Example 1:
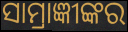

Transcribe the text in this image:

ସାମ୍ରାଜ୍ଞୀଙ୍କର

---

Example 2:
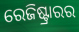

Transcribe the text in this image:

ରେଜିଷ୍ଟ୍ରାରର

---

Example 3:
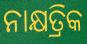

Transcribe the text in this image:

ନାକ୍ଷତ୍ରିକ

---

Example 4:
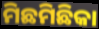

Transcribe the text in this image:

ମିଛମିଛିକା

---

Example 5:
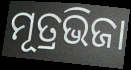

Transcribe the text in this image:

ମୂତ୍ରଭିଜା